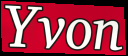
Yvon